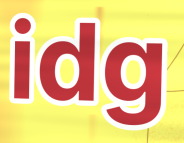
idg